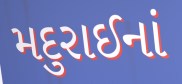
મદુરાઈનાં